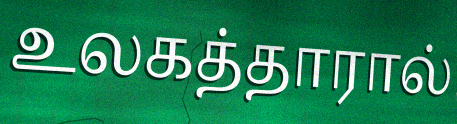
உலகத்தாரால்